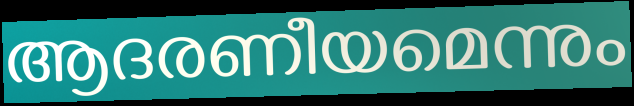
ആദരണീയമെന്നും